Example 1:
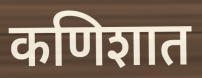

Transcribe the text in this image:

कणिशात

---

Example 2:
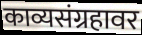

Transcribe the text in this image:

काव्यसंग्रहावर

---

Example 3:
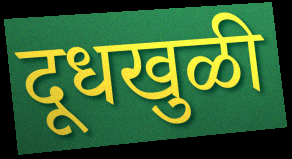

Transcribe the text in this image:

दूधखुळी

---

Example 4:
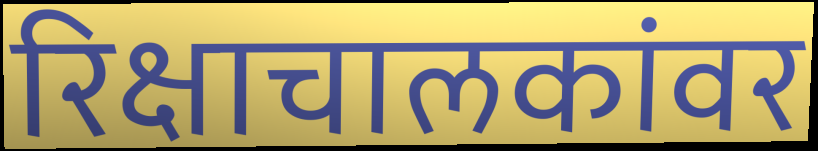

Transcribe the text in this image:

रिक्षाचालकांवर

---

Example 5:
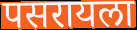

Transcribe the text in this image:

पसरायला